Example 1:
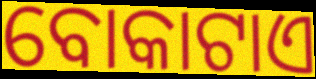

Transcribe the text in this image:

ବୋକାଟାଏ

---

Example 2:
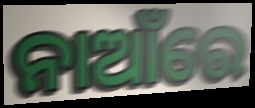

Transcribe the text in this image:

ନାଆଁରେ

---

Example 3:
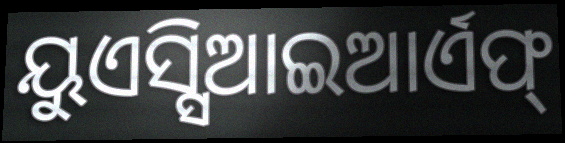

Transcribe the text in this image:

ୟୁଏସ୍ସିଆଇଆର୍ଏଫ୍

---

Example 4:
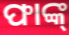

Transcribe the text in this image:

ଫାଙ୍କ୍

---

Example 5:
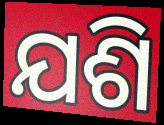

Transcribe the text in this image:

ଯଶି